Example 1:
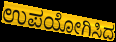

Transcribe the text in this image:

ಉಪಯೋಗಿಸಿದ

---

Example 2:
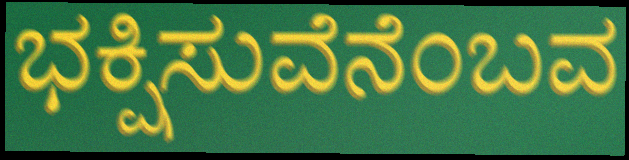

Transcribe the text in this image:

ಭಕ್ಷಿಸುವೆನೆಂಬವ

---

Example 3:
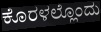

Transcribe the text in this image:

ಕೊರಳಲ್ಲೊಂದು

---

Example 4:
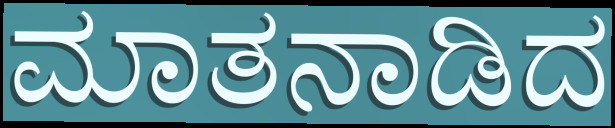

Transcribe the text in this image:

ಮಾತನಾಡಿದ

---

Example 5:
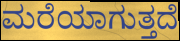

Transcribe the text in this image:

ಮರೆಯಾಗುತ್ತದೆ